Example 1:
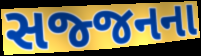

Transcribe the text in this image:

સજ્જનના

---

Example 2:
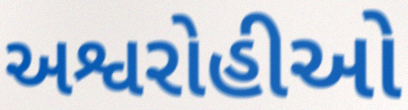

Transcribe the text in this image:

અશ્વરોહીઓ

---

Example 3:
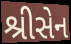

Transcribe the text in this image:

શ્રીસેન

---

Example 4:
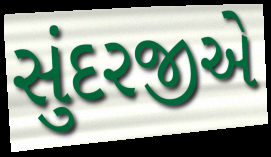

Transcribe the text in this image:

સુંદરજીએ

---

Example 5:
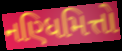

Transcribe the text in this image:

નણ્ધિમિત્તો